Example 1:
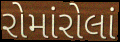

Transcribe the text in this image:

રોમાંરોલાં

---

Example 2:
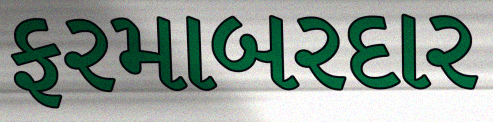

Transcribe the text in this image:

ફરમાબરદાર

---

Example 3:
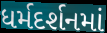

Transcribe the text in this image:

ધર્મદર્શનમાં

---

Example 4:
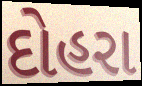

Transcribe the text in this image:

દોહરા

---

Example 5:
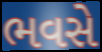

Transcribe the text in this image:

ભવસે